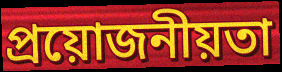
প্রয়োজনীয়তা